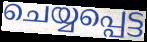
ചെയ്യപ്പെട്ട